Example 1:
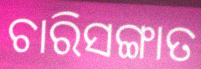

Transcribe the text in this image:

ଚାରିସଙ୍ଗାତ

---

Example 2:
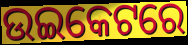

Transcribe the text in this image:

ଉଇକେଟରେ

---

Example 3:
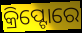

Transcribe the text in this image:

କ୍ରିପ୍ଟୋରେ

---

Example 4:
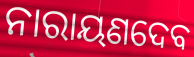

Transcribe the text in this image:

ନାରାୟଣଦେବ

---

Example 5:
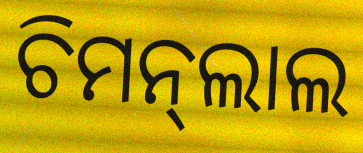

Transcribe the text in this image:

ଚିମନ୍‍ଲାଲ